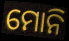
ମୋନି